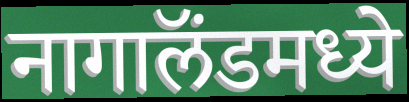
नागालॅंडमध्ये